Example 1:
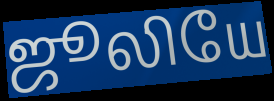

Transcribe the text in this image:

ஜூலியே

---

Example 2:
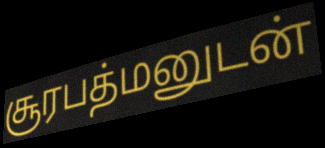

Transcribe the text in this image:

சூரபத்மனுடன்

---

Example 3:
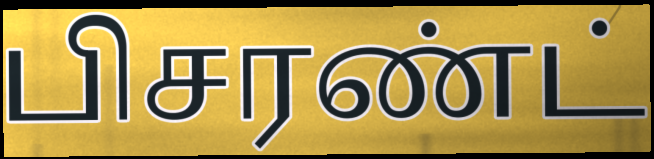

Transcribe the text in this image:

பிசரண்ட்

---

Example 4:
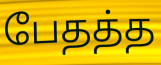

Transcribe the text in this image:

பேதத்த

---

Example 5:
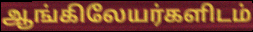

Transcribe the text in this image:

ஆங்கிலேயர்களிடம்